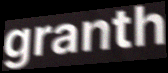
granth